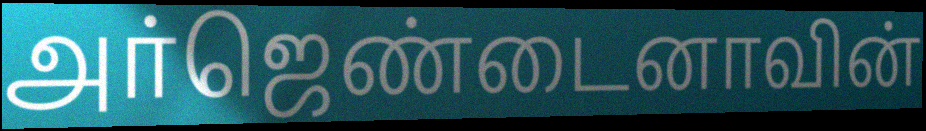
அர்ஜெண்டைனாவின்